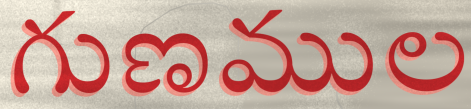
గుణముల